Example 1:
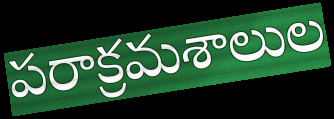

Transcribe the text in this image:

పరాక్రమశాలుల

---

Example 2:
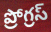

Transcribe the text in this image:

ప్రోగ్రస్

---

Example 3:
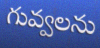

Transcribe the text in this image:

గువ్వలను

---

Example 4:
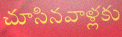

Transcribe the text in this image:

చూసినవాళ్లకు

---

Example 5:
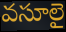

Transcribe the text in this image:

వసూలై